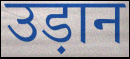
उड़ान